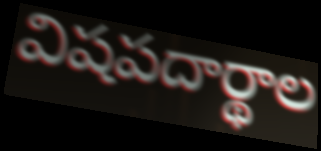
విషపదార్థాల